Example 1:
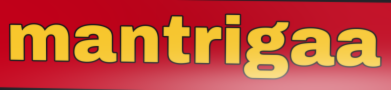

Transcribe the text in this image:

mantrigaa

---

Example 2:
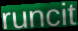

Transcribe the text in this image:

runcit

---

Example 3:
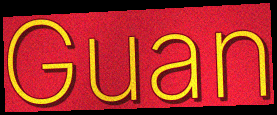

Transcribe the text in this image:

Guan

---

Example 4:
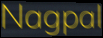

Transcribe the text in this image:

Nagpal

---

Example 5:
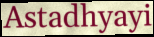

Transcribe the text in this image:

Astadhyayi